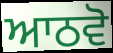
ਆਠਵੋ